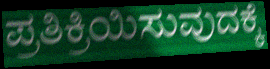
ಪ್ರತಿಕ್ರಿಯಿಸುವುದಕ್ಕೆ